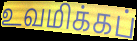
உவமிக்கப்